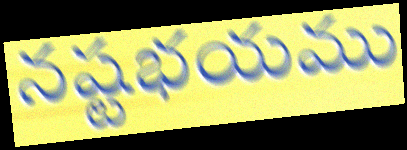
నష్టభయము